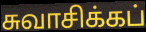
சுவாசிக்கப்